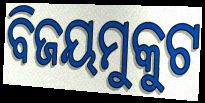
ବିଜୟମୁକୁଟ